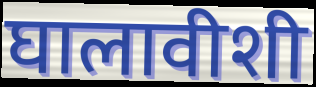
घालावीशी